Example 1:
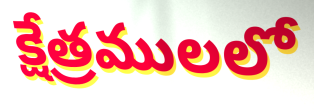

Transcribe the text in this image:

క్షేత్రములలో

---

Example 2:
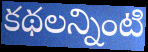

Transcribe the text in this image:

కథలన్నింటి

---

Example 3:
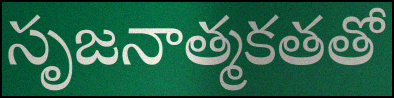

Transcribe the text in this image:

సృజనాత్మకతతో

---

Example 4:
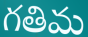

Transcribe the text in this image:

గతిమ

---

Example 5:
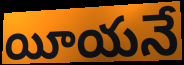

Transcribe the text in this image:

యీయనే